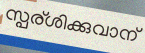
സ്പര്ശിക്കുവാന്